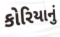
કોરિયાનું